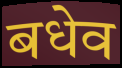
बधेव